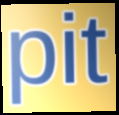
pit